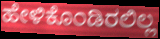
ಹೇಳಿಕೊಂಡಿರಲಿಲ್ಲ